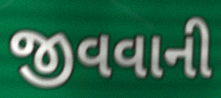
જીવવાની